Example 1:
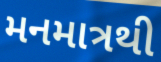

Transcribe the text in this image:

મનમાત્રથી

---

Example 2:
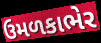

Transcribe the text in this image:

ઉમળકાભેર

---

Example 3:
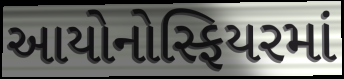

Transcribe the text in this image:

આયોનોસ્ફિયરમાં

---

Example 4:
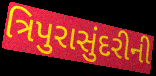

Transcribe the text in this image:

ત્રિપુરાસુંદરીની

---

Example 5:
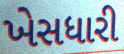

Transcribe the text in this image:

ખેસધારી